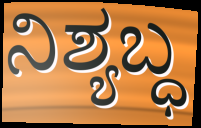
ನಿಶ್ಯಬ್ಧ